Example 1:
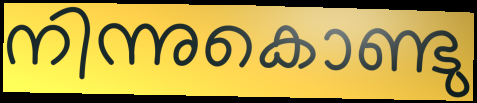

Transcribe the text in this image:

നിന്നുകൊണ്ടു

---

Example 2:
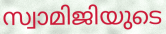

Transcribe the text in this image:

സ്വാമിജിയുടെ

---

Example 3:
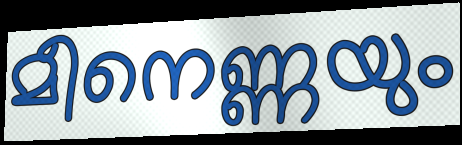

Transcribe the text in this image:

മീനെണ്ണയും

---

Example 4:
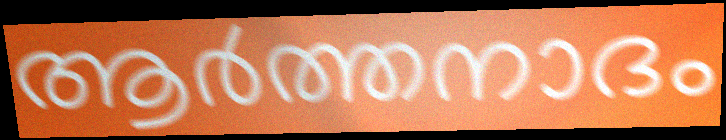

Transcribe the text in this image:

ആർത്തനാദം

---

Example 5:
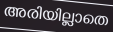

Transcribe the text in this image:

അരിയില്ലാതെ